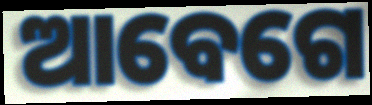
ଆବେଗେ